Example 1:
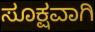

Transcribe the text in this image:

ಸೂಕ್ಷವಾಗಿ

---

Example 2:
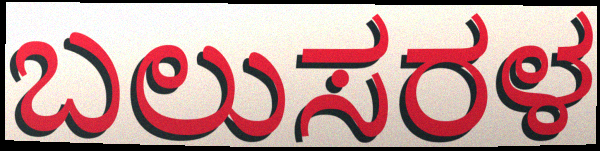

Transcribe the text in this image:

ಬಲುಸರಳ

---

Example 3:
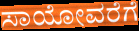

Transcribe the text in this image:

ಸಾಯೋವರೆಗೆ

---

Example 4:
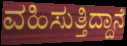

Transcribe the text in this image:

ವಹಿಸುತ್ತಿದ್ದಾನೆ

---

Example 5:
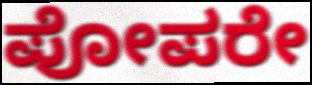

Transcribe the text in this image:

ಪೋಪರೇ